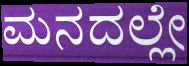
ಮನದಲ್ಲೇ